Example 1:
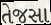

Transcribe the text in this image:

તેજસા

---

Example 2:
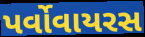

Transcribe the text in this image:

પર્વોવાયરસ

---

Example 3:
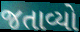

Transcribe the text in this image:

જતાવ્યો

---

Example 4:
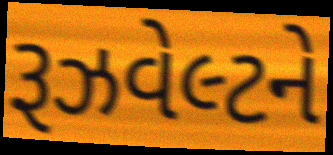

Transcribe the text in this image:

રૂઝવેલ્ટને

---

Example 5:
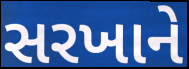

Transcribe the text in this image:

સરખાને